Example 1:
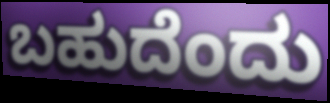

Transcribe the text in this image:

ಬಹುದೆಂದು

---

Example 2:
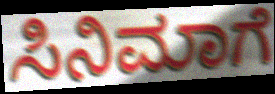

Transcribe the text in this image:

ಸಿನಿಮಾಗೆ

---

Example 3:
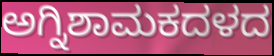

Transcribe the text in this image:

ಅಗ್ನಿಶಾಮಕದಳದ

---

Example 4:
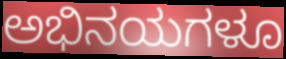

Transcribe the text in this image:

ಅಭಿನಯಗಳೂ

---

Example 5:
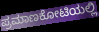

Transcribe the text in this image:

ಪ್ರಮಾಣಕೋಟಿಯಲ್ಲಿ